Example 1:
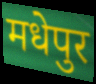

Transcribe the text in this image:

मधेपुर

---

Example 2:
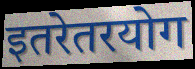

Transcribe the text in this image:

इतरेतरयोग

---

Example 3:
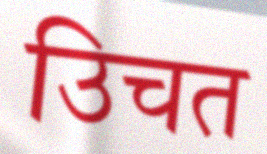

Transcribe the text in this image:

उिचत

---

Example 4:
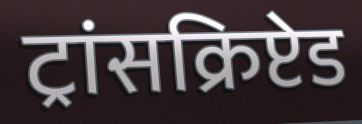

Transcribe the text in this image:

ट्रांसक्रिप्टेड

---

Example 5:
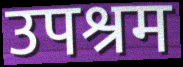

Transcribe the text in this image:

उपश्रम